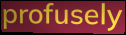
profusely